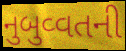
નુબુવ્વતની